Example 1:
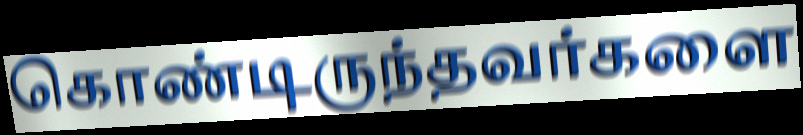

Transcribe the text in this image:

கொண்டிருந்தவர்களை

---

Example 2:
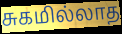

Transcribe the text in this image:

சுகமில்லாத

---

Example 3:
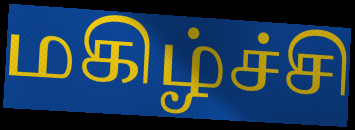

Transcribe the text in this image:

மகிழ்ச்சி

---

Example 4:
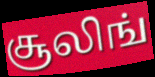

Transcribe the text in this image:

சூலிங்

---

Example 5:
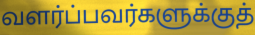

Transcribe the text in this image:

வளர்ப்பவர்களுக்குத்